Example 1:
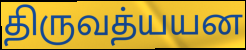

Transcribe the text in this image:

திருவத்யயன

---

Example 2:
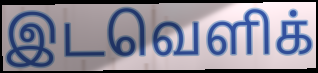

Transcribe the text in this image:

இடவெளிக்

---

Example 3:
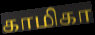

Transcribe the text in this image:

காமிகா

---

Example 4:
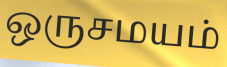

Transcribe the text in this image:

ஒருசமயம்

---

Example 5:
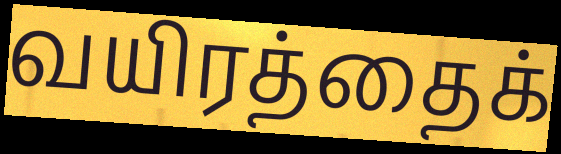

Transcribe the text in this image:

வயிரத்தைக்